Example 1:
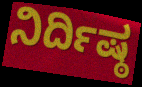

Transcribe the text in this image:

ನಿರ್ದಿಷ್ಠ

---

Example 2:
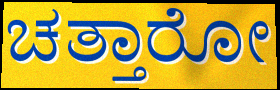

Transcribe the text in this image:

ಚತ್ತಾರೋ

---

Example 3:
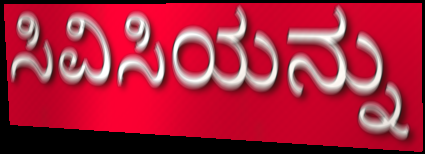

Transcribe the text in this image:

ಸಿವಿಸಿಯನ್ನು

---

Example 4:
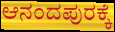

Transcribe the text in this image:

ಆನಂದಪುರಕ್ಕೆ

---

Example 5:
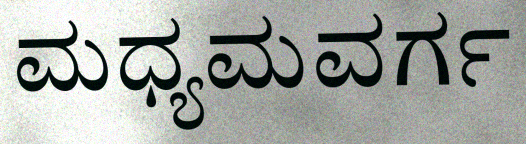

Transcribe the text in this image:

ಮಧ್ಯಮವರ್ಗ